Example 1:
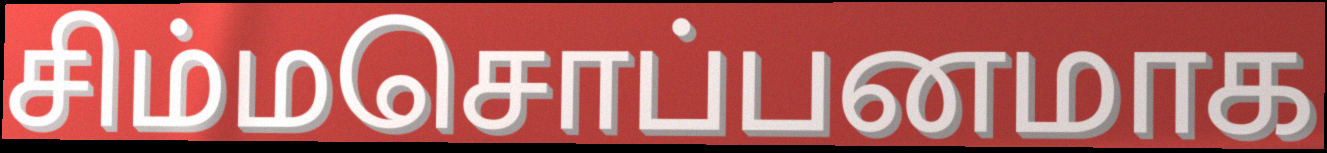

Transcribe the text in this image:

சிம்மசொப்பனமாக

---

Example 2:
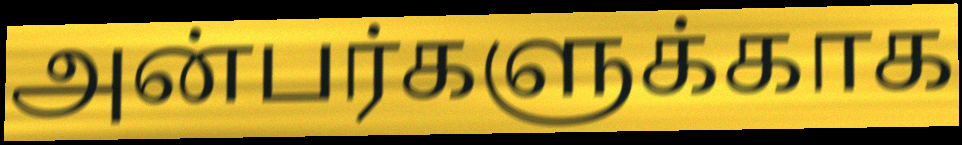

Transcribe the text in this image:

அன்பர்களுக்காக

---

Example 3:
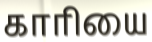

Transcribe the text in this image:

காரியை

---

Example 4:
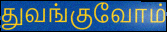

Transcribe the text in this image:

துவங்குவோம்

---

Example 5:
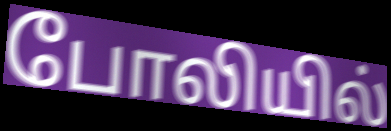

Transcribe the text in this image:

போலியில்